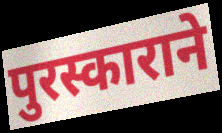
पुरस्काराने